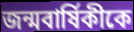
জন্মবার্ষিকীকে